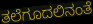
ತಲೆಗೂದಲಿನಂತೆ